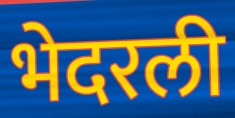
भेदरली